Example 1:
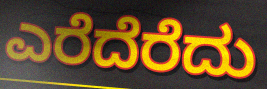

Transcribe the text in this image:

ಎರೆದೆರೆದು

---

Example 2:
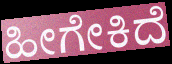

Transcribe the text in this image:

ಹೀಗೇಕಿದೆ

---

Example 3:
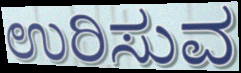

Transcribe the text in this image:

ಉರಿಸುವ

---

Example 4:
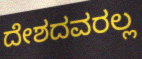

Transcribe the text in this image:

ದೇಶದವರಲ್ಲ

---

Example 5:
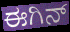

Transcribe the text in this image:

ಈಗಿನ್